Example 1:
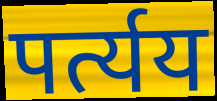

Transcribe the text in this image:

पर्त्यय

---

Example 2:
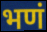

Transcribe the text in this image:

भणं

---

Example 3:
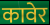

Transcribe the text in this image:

कावेर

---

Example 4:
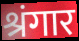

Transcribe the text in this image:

श्रंगार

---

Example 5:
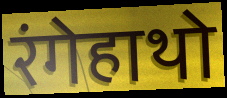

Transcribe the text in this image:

रंगेहाथो